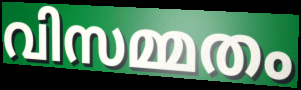
വിസമ്മതം